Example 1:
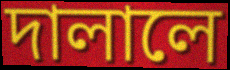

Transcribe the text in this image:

দালালে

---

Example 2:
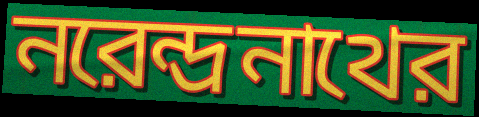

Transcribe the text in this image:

নরেন্দ্রনাথের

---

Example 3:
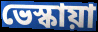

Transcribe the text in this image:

ভেস্কায়া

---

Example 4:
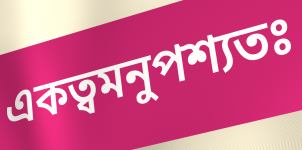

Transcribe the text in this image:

একত্বমনুপশ্যতঃ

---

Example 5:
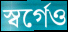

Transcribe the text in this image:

স্বর্গেও